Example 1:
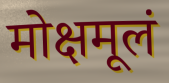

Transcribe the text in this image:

मोक्षमूलं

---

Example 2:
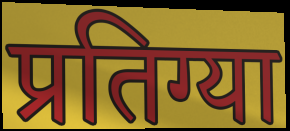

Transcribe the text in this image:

प्रतिग्या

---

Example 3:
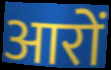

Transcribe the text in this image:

आरों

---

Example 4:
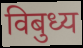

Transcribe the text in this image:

विबुध्य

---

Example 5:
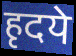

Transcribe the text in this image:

हृदये